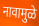
नावामुळे